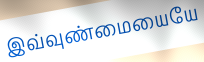
இவ்வுண்மையையே